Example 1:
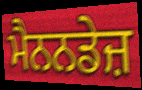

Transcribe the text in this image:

ਮੈਨਨਡੇਜ਼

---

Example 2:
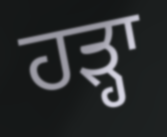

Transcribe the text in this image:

ਹੜ੍ਹਾ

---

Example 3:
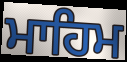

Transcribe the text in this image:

ਮਾਹਿਮ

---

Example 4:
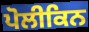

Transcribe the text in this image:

ਪੋਲੀਕਿਨ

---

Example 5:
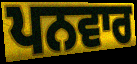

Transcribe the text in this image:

ਪਨਵਾਰ